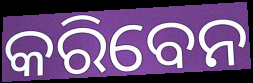
କରିବେନ